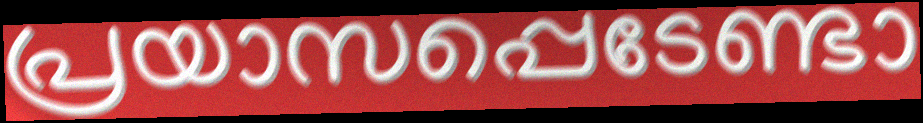
പ്രയാസപ്പെടേണ്ടാ